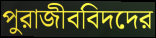
পুরাজীববিদদের